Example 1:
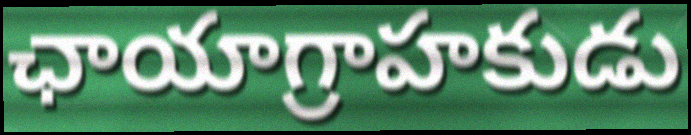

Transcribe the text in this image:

ఛాయాగ్రాహకుడు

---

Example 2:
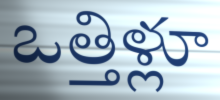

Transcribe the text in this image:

ఒత్తిళ్లూ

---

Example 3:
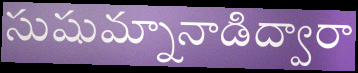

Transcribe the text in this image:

సుషుమ్నానాడిద్వారా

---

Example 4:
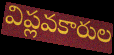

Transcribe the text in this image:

విప్లవకారుల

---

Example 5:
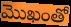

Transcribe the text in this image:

మొఖంతో